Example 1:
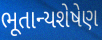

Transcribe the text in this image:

ભૂતાન્યશેષેણ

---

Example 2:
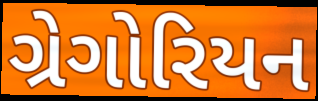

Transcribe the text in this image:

ગ્રેગોરિયન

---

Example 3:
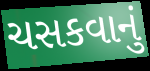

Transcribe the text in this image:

ચસકવાનું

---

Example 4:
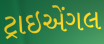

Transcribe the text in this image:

ટ્રાઇએંગલ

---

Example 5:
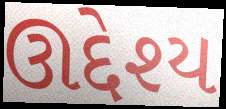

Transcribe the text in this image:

ઊદ્દેશ્ય